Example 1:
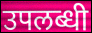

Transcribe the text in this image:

उपलब्धी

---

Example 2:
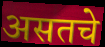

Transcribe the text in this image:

असतचे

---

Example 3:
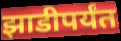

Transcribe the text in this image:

झाडीपर्यंत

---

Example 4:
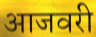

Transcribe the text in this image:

आजवरी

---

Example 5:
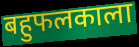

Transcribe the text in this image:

बहुफलकाला